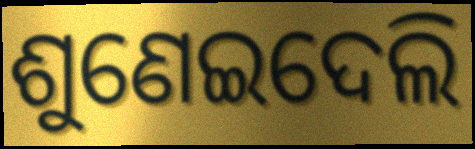
ଶୁଣେଇଦେଲି